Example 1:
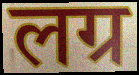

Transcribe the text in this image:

लग्र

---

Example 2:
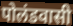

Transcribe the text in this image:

पोलंडवासी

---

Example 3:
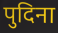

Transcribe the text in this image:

पुदिना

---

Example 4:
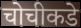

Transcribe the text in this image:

चोचीकडे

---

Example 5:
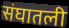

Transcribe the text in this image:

संघातली